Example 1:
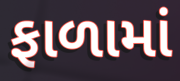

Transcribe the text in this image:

ફાળામાં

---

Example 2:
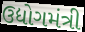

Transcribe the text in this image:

ઉદ્યોગમંત્રી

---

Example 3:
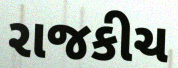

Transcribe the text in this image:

રાજકીચ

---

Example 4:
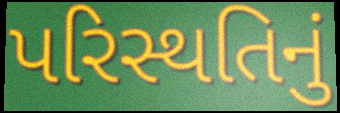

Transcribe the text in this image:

પરિસ્થતિનું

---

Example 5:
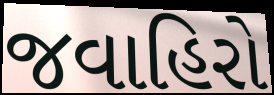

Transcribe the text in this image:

જવાહિરો